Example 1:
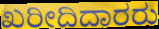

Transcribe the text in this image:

ಖರೀದಿದಾರರು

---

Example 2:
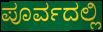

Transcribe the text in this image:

ಪೂರ್ವದಲ್ಲಿ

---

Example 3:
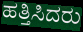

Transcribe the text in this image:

ಹತ್ತಿಸಿದರು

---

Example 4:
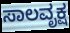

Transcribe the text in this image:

ಸಾಲವೃಕ್ಷ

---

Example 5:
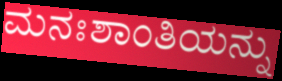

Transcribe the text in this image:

ಮನಃಶಾಂತಿಯನ್ನು